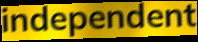
independent